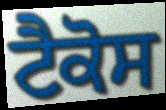
ਟੈਕੋਸ